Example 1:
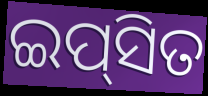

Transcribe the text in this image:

ଇପ୍‌ସିତ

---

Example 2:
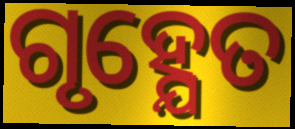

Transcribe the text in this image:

ଗୃହ୍ଯେତ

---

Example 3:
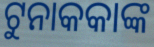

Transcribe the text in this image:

ଟୁନାକକାଙ୍କ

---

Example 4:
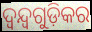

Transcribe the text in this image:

ଦ୍ୱନ୍ଦ୍ୱଗୁଡ଼ିକର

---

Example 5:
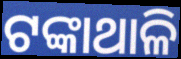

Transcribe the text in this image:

ଟଙ୍କାଥାଳି